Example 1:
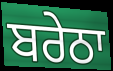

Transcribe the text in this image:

ਬਰੇਠਾ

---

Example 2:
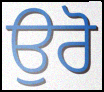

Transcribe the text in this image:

ਉਰੋ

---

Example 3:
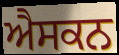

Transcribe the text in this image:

ਐਸਕਨ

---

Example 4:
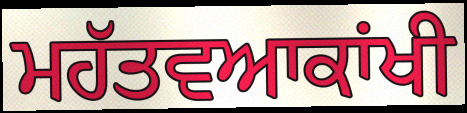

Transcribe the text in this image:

ਮਹੱਤਵਆਕਾਂਖੀ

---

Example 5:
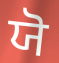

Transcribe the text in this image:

ਯੋ